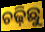
ଚଢ଼ିଛୁ